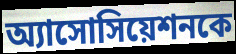
অ্যাসোসিয়েশনকে